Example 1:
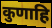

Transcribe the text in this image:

कुणाहि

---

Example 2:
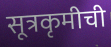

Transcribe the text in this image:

सूत्रकृमीची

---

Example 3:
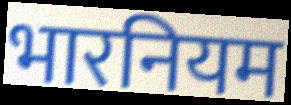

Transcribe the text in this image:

भारनियम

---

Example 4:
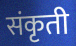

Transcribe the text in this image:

संकृती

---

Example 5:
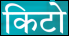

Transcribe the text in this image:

किटो